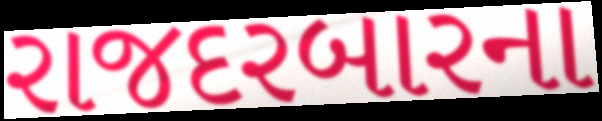
રાજદરબારના